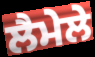
ਲੈਮੇਲੇ